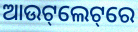
ଆଉଟ୍‌ଲେଟ୍‌ରେ